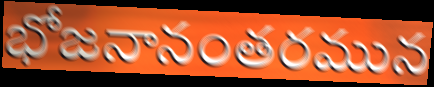
భోజనానంతరమున